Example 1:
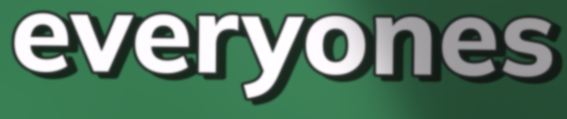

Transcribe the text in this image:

everyones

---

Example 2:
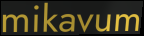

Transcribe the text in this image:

mikavum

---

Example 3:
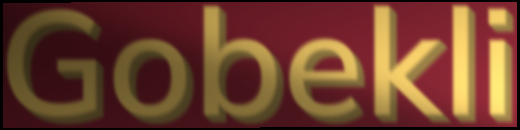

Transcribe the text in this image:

Gobekli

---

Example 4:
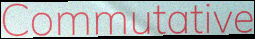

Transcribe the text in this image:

Commutative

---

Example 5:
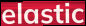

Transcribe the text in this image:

elastic